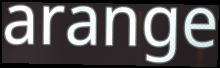
arange